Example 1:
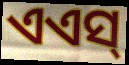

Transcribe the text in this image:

ଏଏସ୍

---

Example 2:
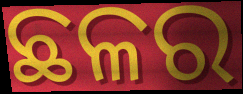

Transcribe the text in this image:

ଛଳର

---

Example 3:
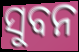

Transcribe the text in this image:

ସୁବନ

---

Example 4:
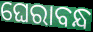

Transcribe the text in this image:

ଘେରାବନ୍ଧ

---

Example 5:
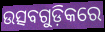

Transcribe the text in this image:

ଉତ୍ସବଗୁଡ଼ିକରେ